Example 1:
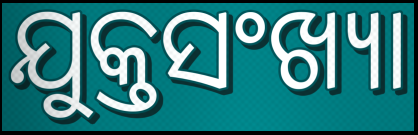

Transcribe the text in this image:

ଯୁକ୍ତସଂଖ୍ୟା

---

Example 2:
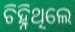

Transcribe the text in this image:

ଚିହ୍ନିଥିଲେ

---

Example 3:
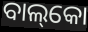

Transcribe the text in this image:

ବାଲ୍‌କୋ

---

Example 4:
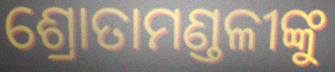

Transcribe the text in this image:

ଶ୍ରୋତାମଣ୍ଡଳୀଙ୍କୁ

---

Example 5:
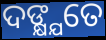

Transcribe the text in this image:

ଦଙ୍କ୍ଷ୍ଯତେ